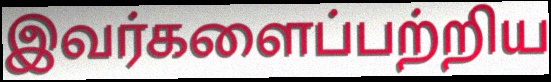
இவர்களைப்பற்றிய